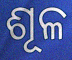
ଶୂଳ